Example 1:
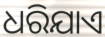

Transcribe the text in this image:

ଧରିଯାଏ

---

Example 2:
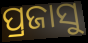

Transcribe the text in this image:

ପ୍ରଜାସୁ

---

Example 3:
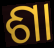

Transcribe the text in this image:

ଶା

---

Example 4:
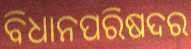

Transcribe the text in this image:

ବିଧାନପରିଷଦର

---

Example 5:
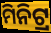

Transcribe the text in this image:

ମିନିଟ୍ର